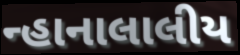
ન્હાનાલાલીય